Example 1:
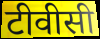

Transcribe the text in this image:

टीवीसी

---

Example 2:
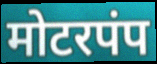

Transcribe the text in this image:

मोटरपंप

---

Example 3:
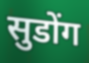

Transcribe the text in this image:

सुडोंग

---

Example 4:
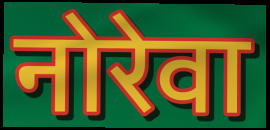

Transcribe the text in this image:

नोरेवा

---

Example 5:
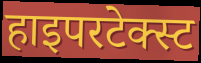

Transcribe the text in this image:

हाइपरटेक्स्ट